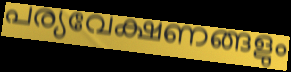
പര്യവേക്ഷണങ്ങളും